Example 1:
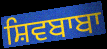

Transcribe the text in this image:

ਸ਼ਿਵਬਾਬਾ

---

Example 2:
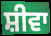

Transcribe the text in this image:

ਸ਼ੀਵਾ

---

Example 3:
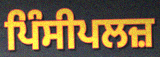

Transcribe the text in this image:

ਪਿੰਸੀਪਲਜ਼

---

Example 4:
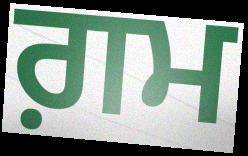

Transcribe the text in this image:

ਗ਼ਮ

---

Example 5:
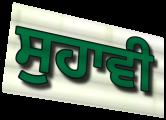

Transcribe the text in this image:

ਸੁਹਾਵੀ